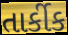
તાર્કીક